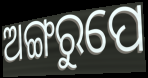
ଅଙ୍ଗରୁପେ